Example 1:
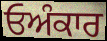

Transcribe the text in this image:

ਓਅੰਕਾਰ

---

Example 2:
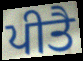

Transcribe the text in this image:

ਪੀਤੈ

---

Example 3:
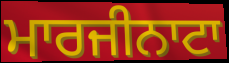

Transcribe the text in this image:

ਮਾਰਜੀਨਾਟਾ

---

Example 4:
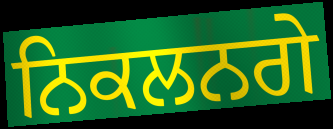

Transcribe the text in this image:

ਨਿਕਲਨਗੇ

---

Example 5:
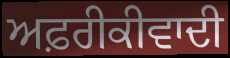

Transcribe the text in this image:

ਅਫ਼ਰੀਕੀਵਾਦੀ